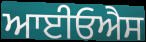
ਆਈਓਐਸ